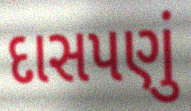
દાસપણું